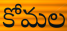
కోమల